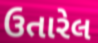
ઉતારેલ